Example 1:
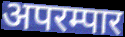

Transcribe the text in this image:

अपरम्पार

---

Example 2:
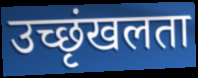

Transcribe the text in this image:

उच्छृंखलता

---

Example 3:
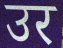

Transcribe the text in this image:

उर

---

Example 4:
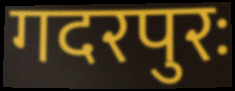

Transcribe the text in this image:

गदरपुरः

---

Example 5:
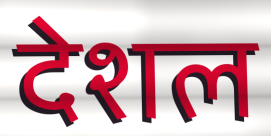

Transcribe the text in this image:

देशल